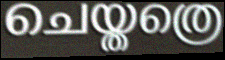
ചെയ്തത്രെ